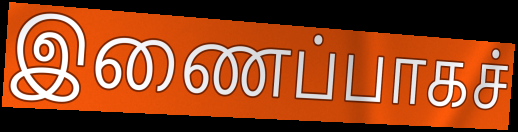
இணைப்பாகச்